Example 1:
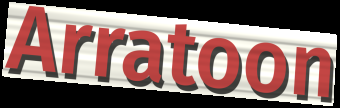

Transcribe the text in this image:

Arratoon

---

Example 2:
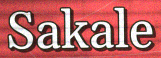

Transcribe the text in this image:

Sakale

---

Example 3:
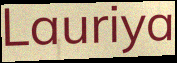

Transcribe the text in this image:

Lauriya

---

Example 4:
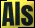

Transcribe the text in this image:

AIs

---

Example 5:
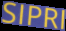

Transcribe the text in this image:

SIPRI